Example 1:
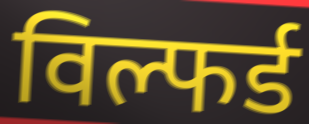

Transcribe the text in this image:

विल्फर्ड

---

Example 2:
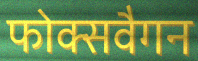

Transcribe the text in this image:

फोक्सवैगन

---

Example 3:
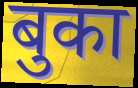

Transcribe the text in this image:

बुका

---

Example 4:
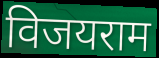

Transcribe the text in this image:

विजयराम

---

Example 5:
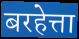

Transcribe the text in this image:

बरहेत्ता